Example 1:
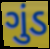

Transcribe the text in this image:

ગુંડ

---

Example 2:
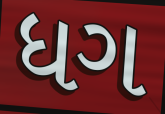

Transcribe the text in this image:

ધગ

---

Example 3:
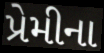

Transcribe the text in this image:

પ્રેમીના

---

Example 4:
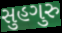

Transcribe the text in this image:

સુહગુરુ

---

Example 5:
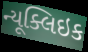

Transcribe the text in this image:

ન્યૂક્લિઇક